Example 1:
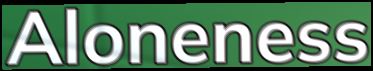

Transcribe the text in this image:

Aloneness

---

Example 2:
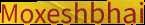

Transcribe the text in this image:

Moxeshbhai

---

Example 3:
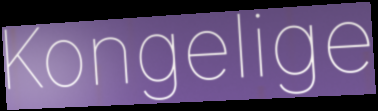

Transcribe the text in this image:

Kongelige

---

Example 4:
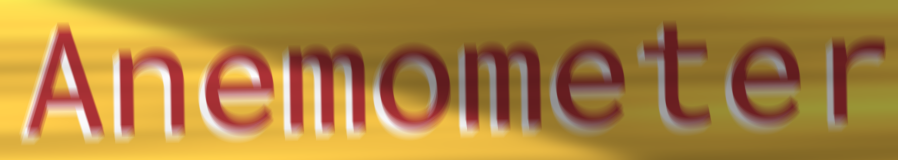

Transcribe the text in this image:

Anemometer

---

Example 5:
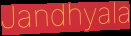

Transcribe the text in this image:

Jandhyala